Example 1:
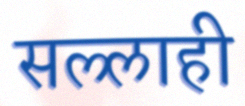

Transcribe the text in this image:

सल्लाही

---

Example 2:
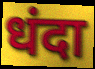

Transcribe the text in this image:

धंदा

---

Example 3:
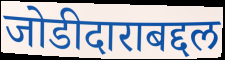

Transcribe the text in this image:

जोडीदाराबद्दल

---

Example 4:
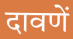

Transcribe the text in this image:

दावणें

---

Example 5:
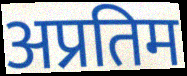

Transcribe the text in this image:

अप्रतिम